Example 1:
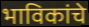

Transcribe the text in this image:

भाविकांचे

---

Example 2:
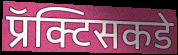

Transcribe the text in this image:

प्रॅक्टिसकडे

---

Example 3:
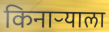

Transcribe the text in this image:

किनाऱ्याला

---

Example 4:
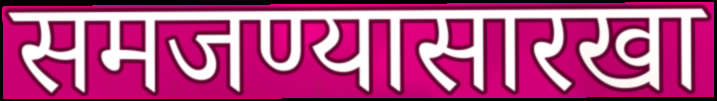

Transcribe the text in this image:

समजण्यासारखा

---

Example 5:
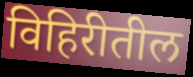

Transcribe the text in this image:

विहिरीतील